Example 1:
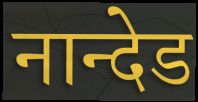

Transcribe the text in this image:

नान्देड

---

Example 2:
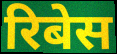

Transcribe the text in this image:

रिबेस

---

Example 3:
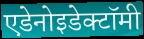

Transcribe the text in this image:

एडेनोइडेक्टॉमी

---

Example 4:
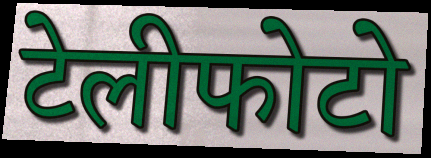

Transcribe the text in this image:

टेलीफोटो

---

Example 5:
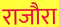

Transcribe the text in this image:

राजौरा